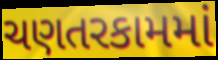
ચણતરકામમાં